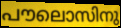
പൗലൊസിനു